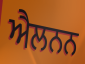
ਐਲਨਨ